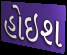
હોઇશ